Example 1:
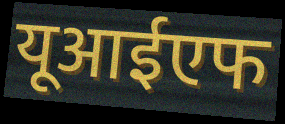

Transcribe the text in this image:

यूआईएफ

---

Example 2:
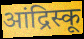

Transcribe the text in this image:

आंद्रिस्कू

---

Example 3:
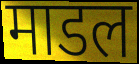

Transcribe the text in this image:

माडल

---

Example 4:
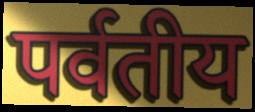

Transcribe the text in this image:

पर्वतीय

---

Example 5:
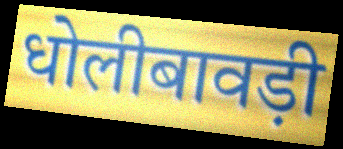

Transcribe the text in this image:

धोलीबावड़ी